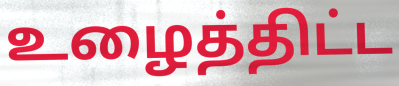
உழைத்திட்ட